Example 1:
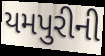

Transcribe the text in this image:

યમપુરીની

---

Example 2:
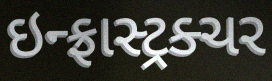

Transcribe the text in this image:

ઇન્ફ્રાસ્ટ્રક્ચર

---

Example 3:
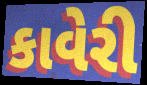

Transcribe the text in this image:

કાવેરી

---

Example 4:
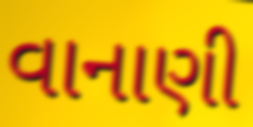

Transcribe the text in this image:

વાનાણી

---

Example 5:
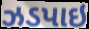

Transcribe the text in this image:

ઝડપાઇ